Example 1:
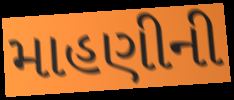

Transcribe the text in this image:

માહણીની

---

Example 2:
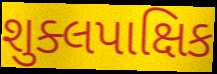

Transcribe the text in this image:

શુક્લપાક્ષિક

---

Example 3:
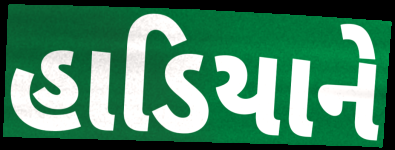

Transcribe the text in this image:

હાડિયાને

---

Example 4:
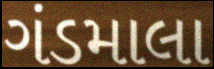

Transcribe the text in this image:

ગંડમાલા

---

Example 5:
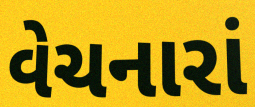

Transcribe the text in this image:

વેચનારાં